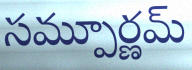
సమ్పూర్ణమ్